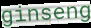
ginseng